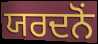
ਯਰਦਨੋਂ